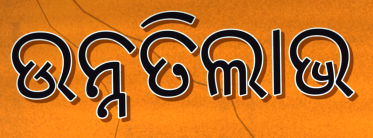
ଉନ୍ନତିଲାଭ